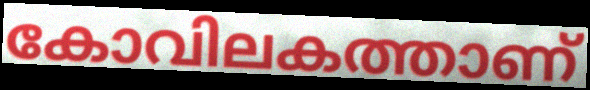
കോവിലകത്താണ്